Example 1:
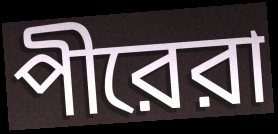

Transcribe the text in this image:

পীরেরা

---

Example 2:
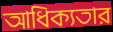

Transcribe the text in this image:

আধিক্যতার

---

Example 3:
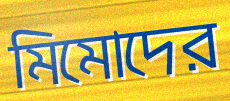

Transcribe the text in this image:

মিমোদের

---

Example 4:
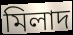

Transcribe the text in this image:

মিলাদ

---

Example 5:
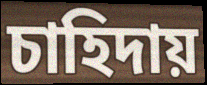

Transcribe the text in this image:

চাহিদায়